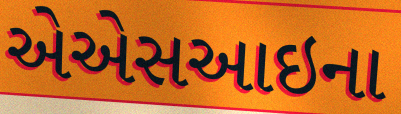
એએસઆઇના